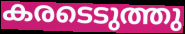
കരടെടുത്തു